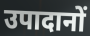
उपादानों